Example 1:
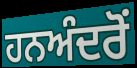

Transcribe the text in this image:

ਹਨਅੰਦਰੋਂ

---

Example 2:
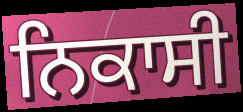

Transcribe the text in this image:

ਨਿਕਾਸੀ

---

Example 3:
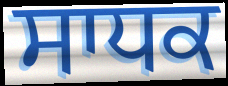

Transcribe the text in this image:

ਸਾਧਕ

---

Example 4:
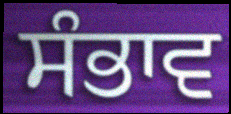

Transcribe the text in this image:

ਸੰਭਾਵ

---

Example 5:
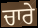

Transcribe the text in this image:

ਚਾਰੇ